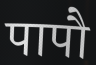
पापौ